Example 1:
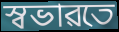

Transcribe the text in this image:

স্বভাৱতে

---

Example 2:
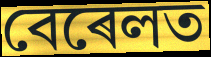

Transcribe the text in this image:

বেৰেলত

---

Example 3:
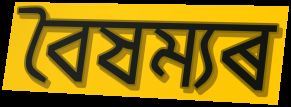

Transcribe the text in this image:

বৈষম্যৰ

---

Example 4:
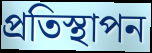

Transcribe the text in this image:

প্ৰতিস্থাপন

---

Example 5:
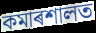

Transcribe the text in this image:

কমাৰশালত